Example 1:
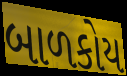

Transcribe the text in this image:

બાળકોય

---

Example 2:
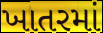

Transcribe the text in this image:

ખાતરમાં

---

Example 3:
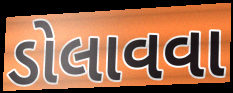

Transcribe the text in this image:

ડોલાવવા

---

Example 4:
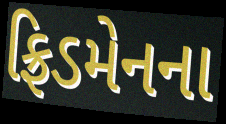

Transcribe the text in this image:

ફ્રિડમેનના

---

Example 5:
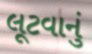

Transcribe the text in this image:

લૂટવાનું